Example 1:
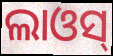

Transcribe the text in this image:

ଲାଓସ୍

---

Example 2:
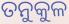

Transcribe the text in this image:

ତନୁକୁଳ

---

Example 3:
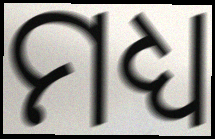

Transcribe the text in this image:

ମଧ୍ୟ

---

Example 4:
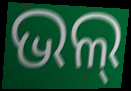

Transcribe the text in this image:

ଭଲ୍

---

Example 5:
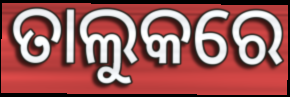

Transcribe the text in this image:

ତାଲୁକରେ